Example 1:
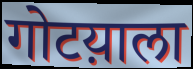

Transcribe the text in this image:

गोटय़ाला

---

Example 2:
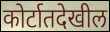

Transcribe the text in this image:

कोर्टातदेखील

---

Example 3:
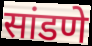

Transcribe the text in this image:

सांडणे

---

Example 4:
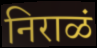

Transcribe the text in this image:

निराळं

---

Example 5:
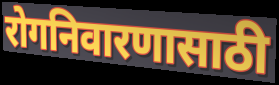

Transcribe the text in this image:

रोगनिवारणासाठी